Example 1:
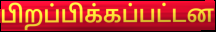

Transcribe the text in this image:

பிறப்பிக்கப்பட்டன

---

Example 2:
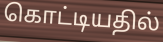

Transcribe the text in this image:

கொட்டியதில்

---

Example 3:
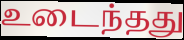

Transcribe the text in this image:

உடைந்தது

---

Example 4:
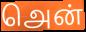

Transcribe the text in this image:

அென்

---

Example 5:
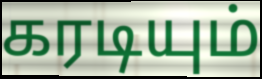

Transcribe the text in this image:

கரடியும்